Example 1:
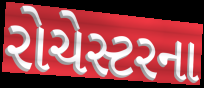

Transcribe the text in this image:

રોચેસ્ટરના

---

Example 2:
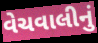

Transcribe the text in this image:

વેચવાલીનું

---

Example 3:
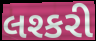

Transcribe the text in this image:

લશ્કરી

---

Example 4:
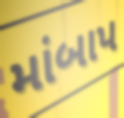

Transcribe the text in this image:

માંબાપ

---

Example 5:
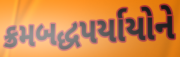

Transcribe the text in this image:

ક્રમબદ્ધપર્યાયોને